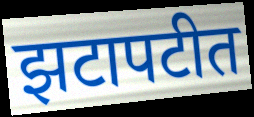
झटापटीत